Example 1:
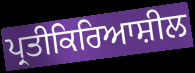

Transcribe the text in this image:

ਪ੍ਰਤੀਕਿਰਿਆਸ਼ੀਲ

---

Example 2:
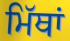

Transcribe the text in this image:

ਮਿੱਥਾਂ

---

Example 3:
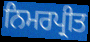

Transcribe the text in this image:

ਨਿਮਰਪ੍ਰੀਤ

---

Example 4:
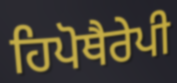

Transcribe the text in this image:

ਹਿਪੋਥੈਰੇਪੀ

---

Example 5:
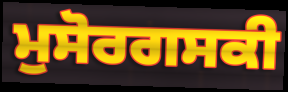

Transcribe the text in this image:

ਮੁਸੋਰਗਸਕੀ